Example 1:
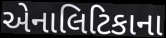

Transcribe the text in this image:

એનાલિટિકાના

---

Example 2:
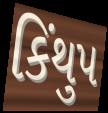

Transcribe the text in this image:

કિંથુપ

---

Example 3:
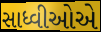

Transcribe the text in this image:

સાધ્વીઓએ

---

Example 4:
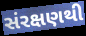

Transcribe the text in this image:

સંરક્ષણથી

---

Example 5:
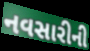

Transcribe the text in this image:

નવસારીની